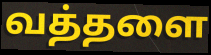
வத்தளை